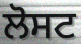
ਲੋਸਟ